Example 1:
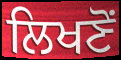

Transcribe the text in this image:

ਲਿਖਣੋਂ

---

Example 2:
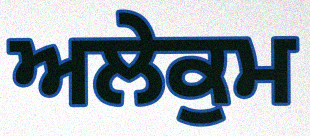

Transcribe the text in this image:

ਅਲੇਕੁਮ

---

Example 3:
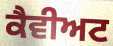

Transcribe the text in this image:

ਕੈਵੀਅਟ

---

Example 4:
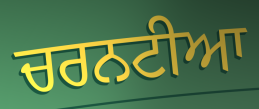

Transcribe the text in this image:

ਚਰਨਟੀਆ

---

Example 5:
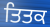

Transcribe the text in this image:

ਤਿਤਕ